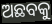
ଅଛବକୁ